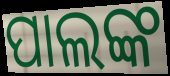
ପାଲଙ୍କ